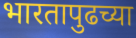
भारतापुढच्या